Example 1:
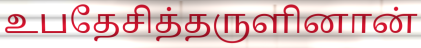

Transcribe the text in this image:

உபதேசித்தருளினான்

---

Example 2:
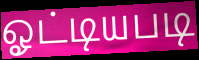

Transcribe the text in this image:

ஓட்டியபடி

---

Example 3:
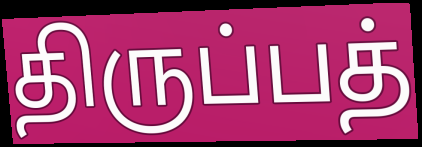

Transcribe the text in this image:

திருப்பத்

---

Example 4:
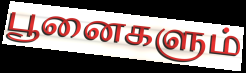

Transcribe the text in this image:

பூனைகளும்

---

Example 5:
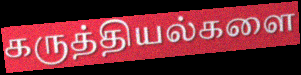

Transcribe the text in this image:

கருத்தியல்களை